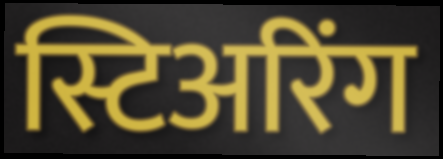
स्टिअरिंग